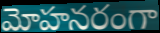
మోహనరంగా